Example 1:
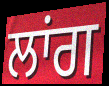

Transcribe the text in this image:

ਲਾਂਗ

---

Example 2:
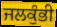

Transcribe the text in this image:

ਜਲਕੁੰਭੀ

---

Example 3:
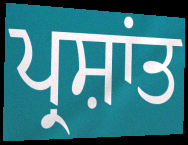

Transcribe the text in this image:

ਪ੍ਰਸ਼ਾਂਤ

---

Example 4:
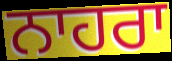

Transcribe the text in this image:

ਨਾਹਰਾ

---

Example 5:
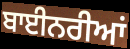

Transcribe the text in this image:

ਬਾਈਨਰੀਆਂ